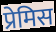
प्रेमिस